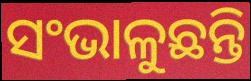
ସଂଭାଳୁଛନ୍ତି